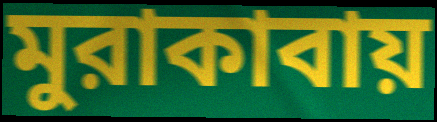
মুরাকাবায়